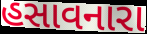
હસાવનારા